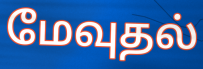
மேவுதல்